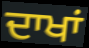
ਦਾਖਾਂ